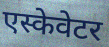
एस्केवेटर